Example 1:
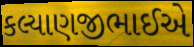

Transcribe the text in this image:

કલ્યાણજીભાઈએ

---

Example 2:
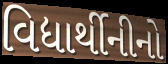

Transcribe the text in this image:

વિદ્યાર્થીનીનો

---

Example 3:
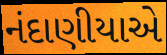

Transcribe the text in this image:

નંદાણીયાએ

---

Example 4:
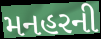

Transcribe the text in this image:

મનહરની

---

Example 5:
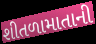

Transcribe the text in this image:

શીતળામાતાની